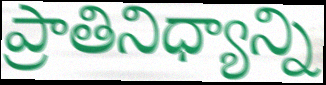
ప్రాతినిధ్యాన్ని